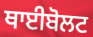
ਥਾਈਬੋਲਟ